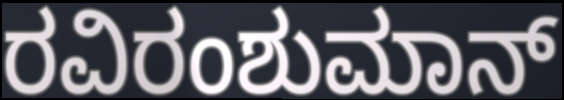
ರವಿರಂಶುಮಾನ್